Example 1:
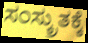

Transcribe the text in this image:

ಸಂಸ್ಕ್ರುತಕ್ಕೆ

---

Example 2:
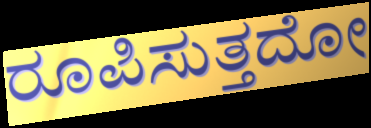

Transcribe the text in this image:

ರೂಪಿಸುತ್ತದೋ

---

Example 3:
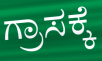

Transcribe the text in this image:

ಗ್ರಾಸಕ್ಕೆ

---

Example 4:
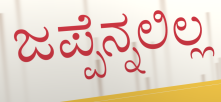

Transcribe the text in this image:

ಜಪ್ಪೆನ್ನಲಿಲ್ಲ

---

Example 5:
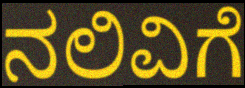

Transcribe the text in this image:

ನಲಿವಿಗೆ